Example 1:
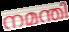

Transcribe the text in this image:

നമന്തി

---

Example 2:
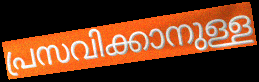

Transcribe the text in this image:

പ്രസവിക്കാനുള്ള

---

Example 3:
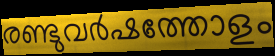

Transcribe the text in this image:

രണ്ടുവർഷത്തോളം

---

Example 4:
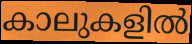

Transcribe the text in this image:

കാലുകളിൽ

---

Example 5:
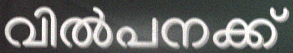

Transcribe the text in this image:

വിൽപനക്ക്